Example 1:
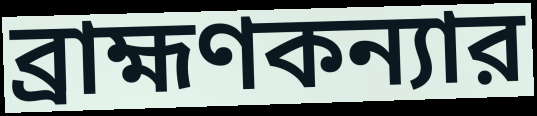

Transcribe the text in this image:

ব্রাহ্মণকন্যার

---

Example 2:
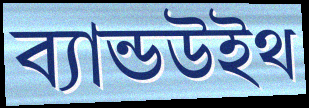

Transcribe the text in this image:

ব্যান্ডউইথ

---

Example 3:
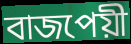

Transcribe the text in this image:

বাজপেয়ী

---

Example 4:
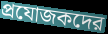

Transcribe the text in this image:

প্রযোজকদের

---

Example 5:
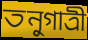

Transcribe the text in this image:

তনুগাত্রী